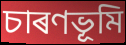
চাৰণভূমি